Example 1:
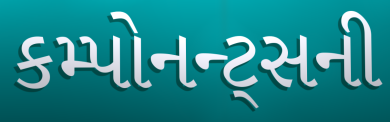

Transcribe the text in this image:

કમ્પોનન્ટ્સની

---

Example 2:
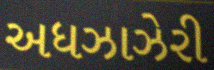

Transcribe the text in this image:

અધઝાઝેરી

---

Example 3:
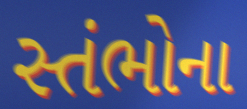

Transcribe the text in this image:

સ્તંભોના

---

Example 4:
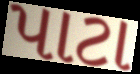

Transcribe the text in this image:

પાટા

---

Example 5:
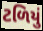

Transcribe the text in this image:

ટળિયું